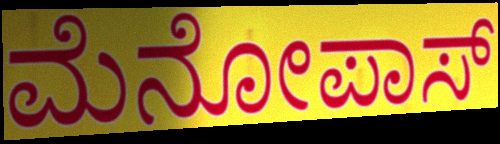
ಮೆನೋಪಾಸ್